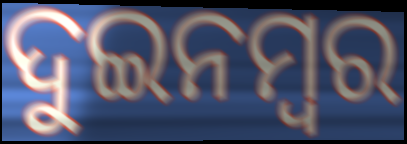
ଦୁଇନମ୍ୱର